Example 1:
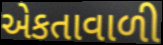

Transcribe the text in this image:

એકતાવાળી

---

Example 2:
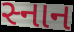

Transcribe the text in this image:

સ્નાન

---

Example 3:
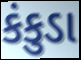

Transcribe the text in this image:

કંકુડા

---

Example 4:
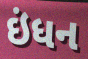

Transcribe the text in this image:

ઇંધન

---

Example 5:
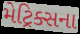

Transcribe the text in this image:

મેટ્રિક્સના